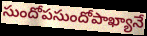
సుందోపసుందోపాఖ్యానే